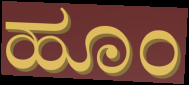
ಹೂಂ